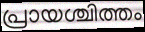
പ്രായശ്ചിത്തം